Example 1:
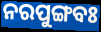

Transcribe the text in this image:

ନରପୁଙ୍ଗବଃ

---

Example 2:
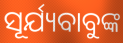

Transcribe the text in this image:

ସୂର୍ଯ୍ୟବାବୁଙ୍କ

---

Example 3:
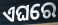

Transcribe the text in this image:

ଏଘରେ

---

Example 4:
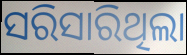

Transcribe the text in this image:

ସରିସାରିଥିଲା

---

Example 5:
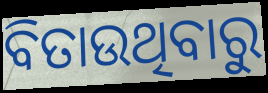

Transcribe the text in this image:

ବିତାଉଥିବାରୁ